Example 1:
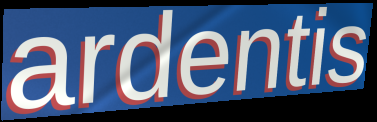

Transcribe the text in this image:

ardentis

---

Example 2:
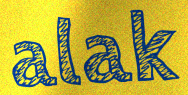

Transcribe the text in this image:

alak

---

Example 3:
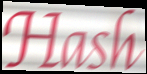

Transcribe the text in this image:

Hash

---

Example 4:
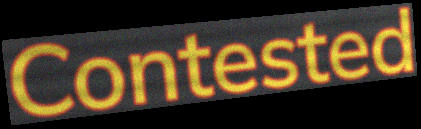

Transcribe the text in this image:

Contested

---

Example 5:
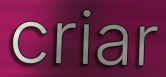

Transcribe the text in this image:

criar